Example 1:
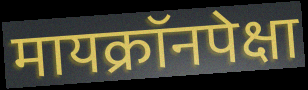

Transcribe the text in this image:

मायक्रॉनपेक्षा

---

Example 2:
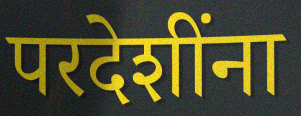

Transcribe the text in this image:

परदेशींना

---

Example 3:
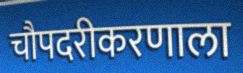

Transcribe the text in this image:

चौपदरीकरणाला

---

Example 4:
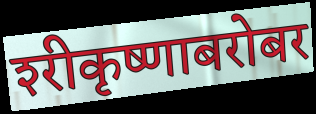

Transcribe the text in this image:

श्रीकृष्णाबरोबर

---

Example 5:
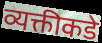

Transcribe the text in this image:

व्यक्तीकडे